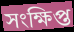
সংক্ষিপ্ত